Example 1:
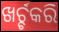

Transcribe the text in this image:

ଖର୍ଚ୍ଚକରି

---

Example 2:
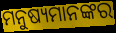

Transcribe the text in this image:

ମନୁଷ୍ଯମାନଙ୍କର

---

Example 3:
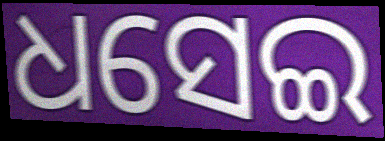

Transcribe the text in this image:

ଧସେଇ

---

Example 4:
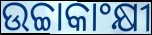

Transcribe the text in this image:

ଉଚ୍ଚାକାଂକ୍ଷୀ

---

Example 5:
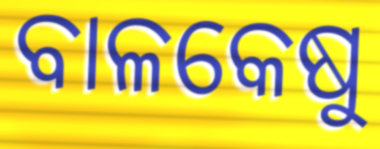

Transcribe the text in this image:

ବାଳକେଷୁ